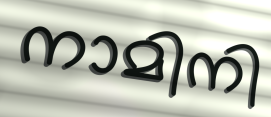
നാമിനി